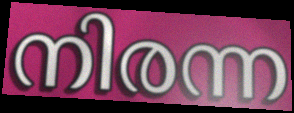
നിരന്ന